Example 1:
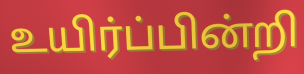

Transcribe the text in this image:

உயிர்ப்பின்றி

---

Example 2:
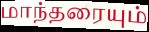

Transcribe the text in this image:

மாந்தரையும்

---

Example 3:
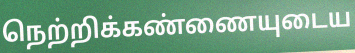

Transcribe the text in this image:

நெற்றிக்கண்ணையுடைய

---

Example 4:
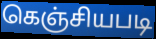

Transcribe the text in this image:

கெஞ்சியபடி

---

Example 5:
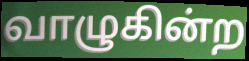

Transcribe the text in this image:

வாழுகின்ற